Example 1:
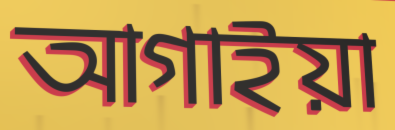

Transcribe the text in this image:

আগাইয়া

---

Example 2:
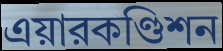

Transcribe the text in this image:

এয়ারকণ্ডিশন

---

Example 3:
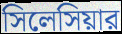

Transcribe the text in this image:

সিলেসিয়ার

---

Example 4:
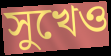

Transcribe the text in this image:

সুখেও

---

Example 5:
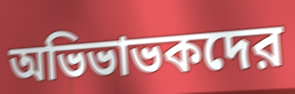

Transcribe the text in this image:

অভিভাভকদের